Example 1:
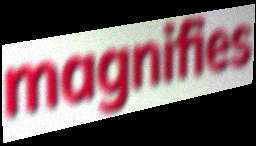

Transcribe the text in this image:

magnifies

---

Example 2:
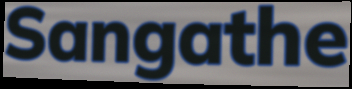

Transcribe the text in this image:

Sangathe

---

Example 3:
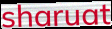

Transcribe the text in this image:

sharuat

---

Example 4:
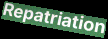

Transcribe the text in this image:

Repatriation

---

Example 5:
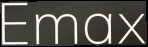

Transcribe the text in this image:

Emax